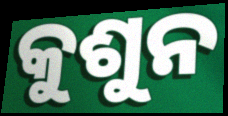
କୁଶୁନ